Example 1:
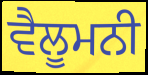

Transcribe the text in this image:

ਵੈਲੂਮਨੀ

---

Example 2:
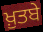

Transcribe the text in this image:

ਖ਼ੁਤਬੇ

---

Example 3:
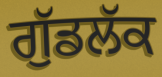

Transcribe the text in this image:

ਗੁੱਡਲੱਕ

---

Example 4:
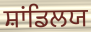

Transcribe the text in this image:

ਸ਼ਾਂਡਿਲਯ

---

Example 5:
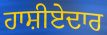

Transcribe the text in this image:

ਹਾਸ਼ੀਏਦਾਰ